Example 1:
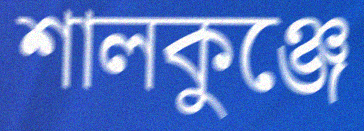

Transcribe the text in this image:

শালকুঞ্জে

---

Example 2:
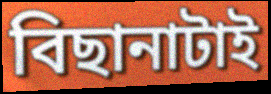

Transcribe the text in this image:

বিছানাটাই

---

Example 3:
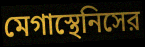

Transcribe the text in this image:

মেগাস্থেনিসের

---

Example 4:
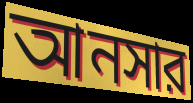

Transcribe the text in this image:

আনসার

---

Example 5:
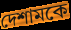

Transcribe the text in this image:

দেশামকে